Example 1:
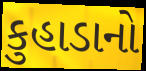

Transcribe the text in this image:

કુહાડાનો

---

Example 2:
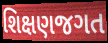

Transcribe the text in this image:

શિક્ષણજગત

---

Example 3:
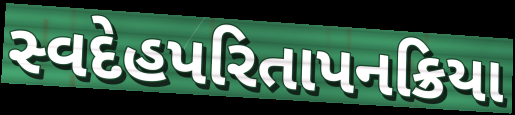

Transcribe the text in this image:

સ્વદેહપરિતાપનક્રિયા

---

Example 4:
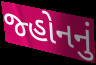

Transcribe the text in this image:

જ્હોનનું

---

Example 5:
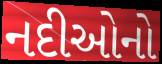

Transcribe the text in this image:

નદીઓનો